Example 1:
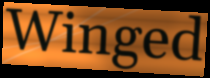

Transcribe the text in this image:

Winged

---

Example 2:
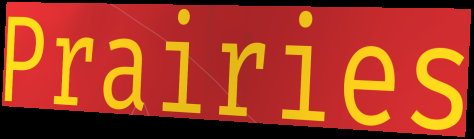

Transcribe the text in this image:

Prairies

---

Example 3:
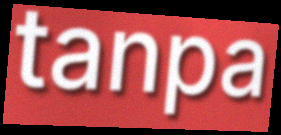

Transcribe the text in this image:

tanpa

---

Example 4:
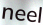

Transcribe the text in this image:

neel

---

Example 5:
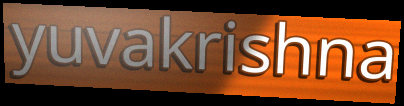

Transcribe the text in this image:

yuvakrishna